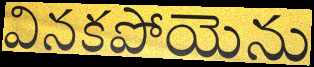
వినకపోయెను